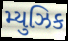
મ્યુઝિક